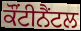
ਕੌਂਟੀਨੈਂਟਲ